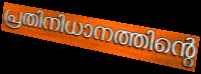
പ്രതിനിധാനത്തിന്റെ